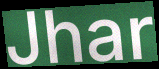
Jhar